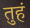
तुहं